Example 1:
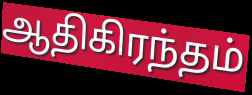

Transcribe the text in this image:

ஆதிகிரந்தம்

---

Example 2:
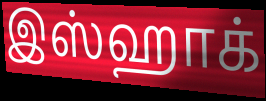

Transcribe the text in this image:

இஸ்ஹாக்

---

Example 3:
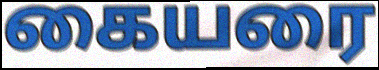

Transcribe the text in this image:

கையரை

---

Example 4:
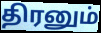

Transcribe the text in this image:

திரனும்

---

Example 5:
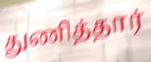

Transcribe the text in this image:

துணித்தார்